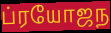
ப்ரயோஜந